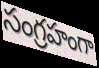
సంగ్రహంగా